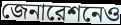
জেনারেশনেও